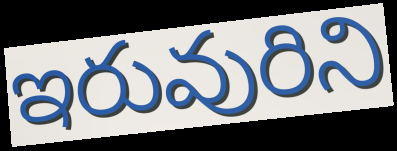
ఇరువురిని